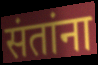
संतांना